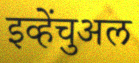
इव्हेंचुअल